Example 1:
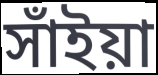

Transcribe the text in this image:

সাঁইয়া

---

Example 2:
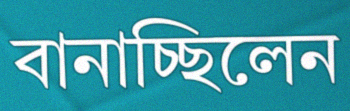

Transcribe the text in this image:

বানাচ্ছিলেন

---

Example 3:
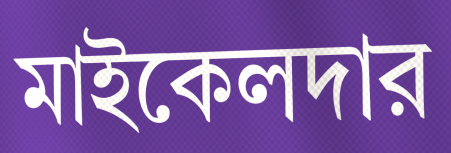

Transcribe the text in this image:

মাইকেলদার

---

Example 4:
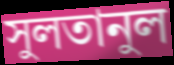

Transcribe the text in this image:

সুলতানুল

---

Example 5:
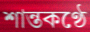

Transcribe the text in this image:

শান্তকণ্ঠে